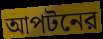
আপটনের